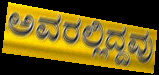
ಅವರಲ್ಲಿದ್ದವು